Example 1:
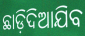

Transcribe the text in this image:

ଛାଡ଼ିଦିଆଯିବ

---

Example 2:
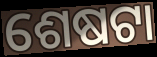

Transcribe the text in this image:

ଶେଷଟା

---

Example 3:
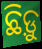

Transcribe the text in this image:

ଛିଡ଼ୁ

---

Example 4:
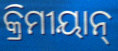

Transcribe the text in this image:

କ୍ରିମୀୟାନ୍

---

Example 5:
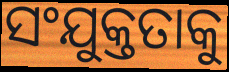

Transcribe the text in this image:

ସଂଯୁକ୍ତତାକୁ